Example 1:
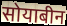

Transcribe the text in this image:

सोयाबीन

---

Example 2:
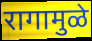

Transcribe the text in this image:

रागामुळे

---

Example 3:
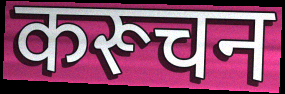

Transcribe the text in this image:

करूचन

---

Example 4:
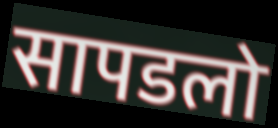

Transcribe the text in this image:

सापडलो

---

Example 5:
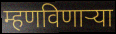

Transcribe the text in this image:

म्हणविणाऱ्या